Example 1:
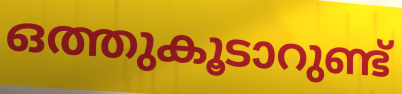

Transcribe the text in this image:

ഒത്തുകൂടാറുണ്ട്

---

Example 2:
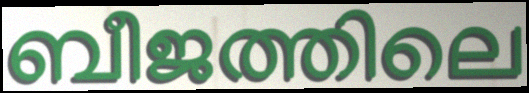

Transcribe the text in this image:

ബീജത്തിലെ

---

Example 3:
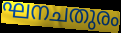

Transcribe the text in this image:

ഘനചതുരം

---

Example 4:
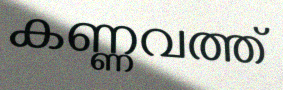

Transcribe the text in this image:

കണ്ണവത്ത്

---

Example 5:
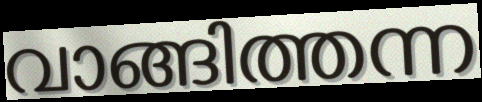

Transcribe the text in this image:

വാങ്ങിത്തന്ന